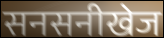
सनसनीखेज